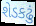
શેડકઢું